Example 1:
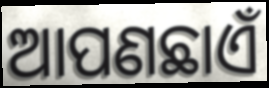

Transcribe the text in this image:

ଆପଣଛାଏଁ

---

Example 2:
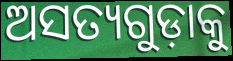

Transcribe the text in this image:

ଅସତ୍ୟଗୁଡ଼ାକୁ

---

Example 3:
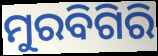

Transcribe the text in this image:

ମୁରବିଗିରି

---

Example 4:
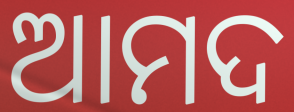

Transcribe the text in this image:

ଆମଦ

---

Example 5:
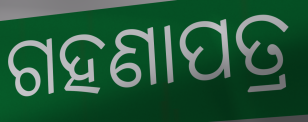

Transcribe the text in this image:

ଗହଣାପତ୍ର